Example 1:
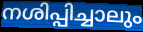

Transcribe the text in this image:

നശിപ്പിച്ചാലും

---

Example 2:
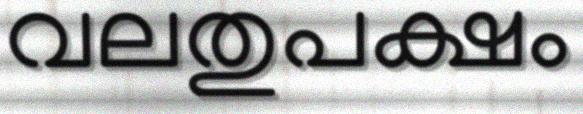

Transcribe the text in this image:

വലതുപക്ഷം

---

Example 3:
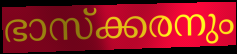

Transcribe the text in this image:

ഭാസ്ക്കരനും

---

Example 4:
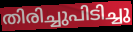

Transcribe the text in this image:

തിരിച്ചുപിടിച്ചു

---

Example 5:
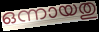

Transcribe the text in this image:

ഒന്നായതു